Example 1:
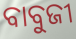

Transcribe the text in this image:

ବାବୁଜୀ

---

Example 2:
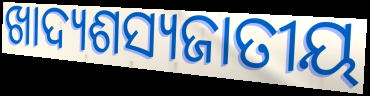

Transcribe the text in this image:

ଖାଦ୍ୟଶସ୍ୟଜାତୀୟ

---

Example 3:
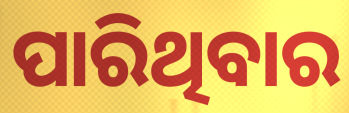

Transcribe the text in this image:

ପାରିଥିବାର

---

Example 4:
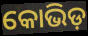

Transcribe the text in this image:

କୋଭିଡ଼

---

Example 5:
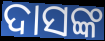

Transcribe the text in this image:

ଦାସଙ୍କ